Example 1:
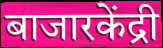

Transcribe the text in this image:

बाजारकेंद्री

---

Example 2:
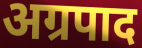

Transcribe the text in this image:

अग्रपाद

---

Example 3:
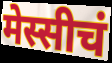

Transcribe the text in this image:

मेस्सीचं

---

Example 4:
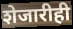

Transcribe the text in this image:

शेजारीही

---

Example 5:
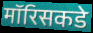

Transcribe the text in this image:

मॉरिसकडे